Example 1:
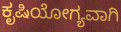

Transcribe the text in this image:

ಕೃಷಿಯೋಗ್ಯವಾಗಿ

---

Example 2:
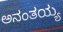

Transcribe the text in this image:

ಅನಂತಯ್ಯ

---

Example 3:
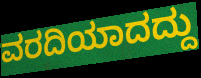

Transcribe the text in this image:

ವರದಿಯಾದದ್ದು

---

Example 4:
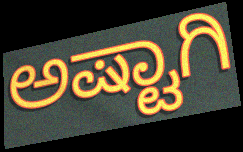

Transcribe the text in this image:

ಅಷ್ಟಾಗಿ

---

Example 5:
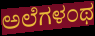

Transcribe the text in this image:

ಅಲೆಗಳಂಥ